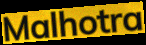
Malhotra